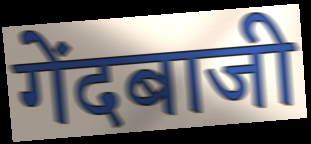
गेंदबाजी